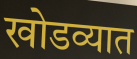
खोडव्यात